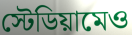
স্টেডিয়ামেও